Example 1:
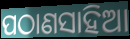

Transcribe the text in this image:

ପଠାଣସାହିଆ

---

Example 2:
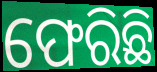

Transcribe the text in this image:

ଫେରିଛି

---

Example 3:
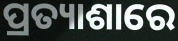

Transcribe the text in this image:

ପ୍ରତ୍ୟାଶାରେ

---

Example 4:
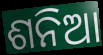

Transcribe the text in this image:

ଶନିଆ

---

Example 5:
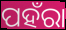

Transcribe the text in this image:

ପହଁରା